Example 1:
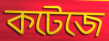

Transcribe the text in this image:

কটেজে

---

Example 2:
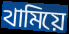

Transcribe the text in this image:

থামিয়ে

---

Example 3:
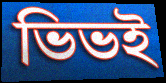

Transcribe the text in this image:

ভিভই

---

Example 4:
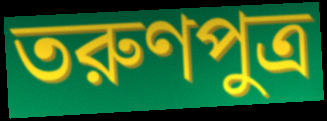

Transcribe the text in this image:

তরুণপুত্র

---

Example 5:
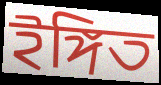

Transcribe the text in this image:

ইঙ্গিত